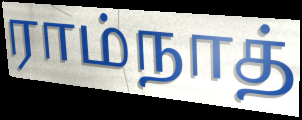
ராம்நாத்